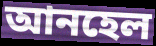
আনহেল